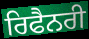
ਰਿਫੈਨਰੀ